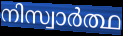
നിസ്വാർത്ഥ